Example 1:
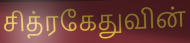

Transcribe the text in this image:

சித்ரகேதுவின்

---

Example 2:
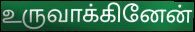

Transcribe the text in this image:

உருவாக்கினேன்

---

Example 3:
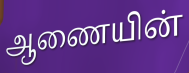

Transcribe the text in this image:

ஆணையின்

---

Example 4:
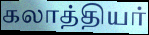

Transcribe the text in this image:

கலாத்தியர்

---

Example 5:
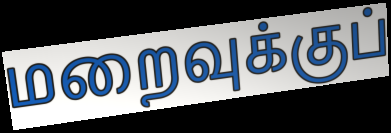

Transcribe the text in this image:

மறைவுக்குப்